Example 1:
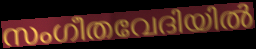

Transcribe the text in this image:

സംഗീതവേദിയിൽ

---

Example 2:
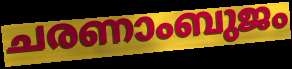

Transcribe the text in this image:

ചരണാംബുജം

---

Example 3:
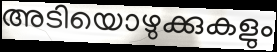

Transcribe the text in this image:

അടിയൊഴുക്കുകളും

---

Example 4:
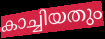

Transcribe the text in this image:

കാച്ചിയതും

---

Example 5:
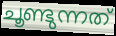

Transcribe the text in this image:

ചൂണ്ടുന്നത്